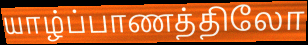
யாழ்ப்பாணத்திலோ